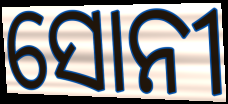
ସୋନୀ